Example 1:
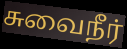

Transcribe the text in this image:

சுவைநீர்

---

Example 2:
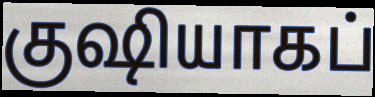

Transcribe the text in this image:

குஷியாகப்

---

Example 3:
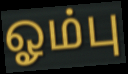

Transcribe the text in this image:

ஓம்பு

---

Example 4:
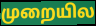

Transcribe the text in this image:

முறையில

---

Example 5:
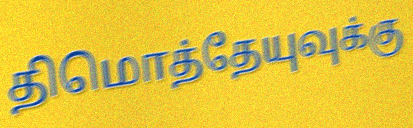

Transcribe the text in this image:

திமொத்தேயுவுக்கு